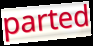
parted